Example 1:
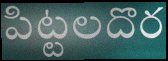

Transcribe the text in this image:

పిట్టలదొర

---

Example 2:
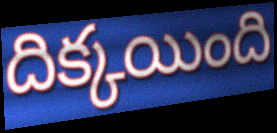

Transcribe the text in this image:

దిక్కయింది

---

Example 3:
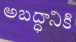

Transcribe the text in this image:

అబద్ధానికి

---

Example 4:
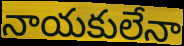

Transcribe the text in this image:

నాయకులేనా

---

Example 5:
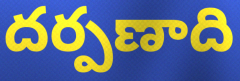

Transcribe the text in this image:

దర్పణాది